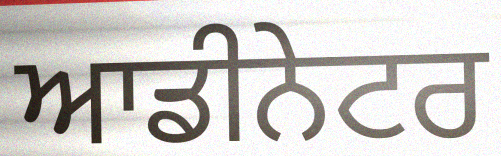
ਆਡੀਨੇਟਰ